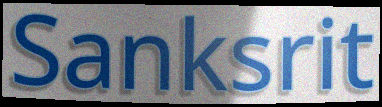
Sanksrit